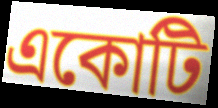
একোটি